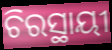
ଚିରସ୍ଥାୟୀ